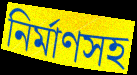
নির্মাণসহ